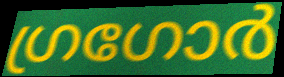
ഗ്രഗോർ